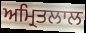
ਅਮ੍ਰਿਤਲਾਲ